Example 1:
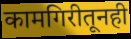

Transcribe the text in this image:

कामगिरीतूनही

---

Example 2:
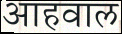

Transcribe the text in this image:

आहवाल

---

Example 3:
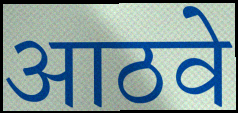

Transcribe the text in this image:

आठवे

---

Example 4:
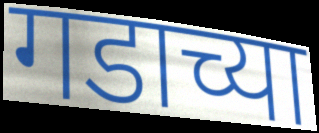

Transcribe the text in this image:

गडाच्या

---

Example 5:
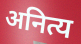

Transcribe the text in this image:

अनित्य